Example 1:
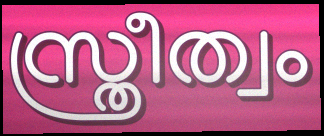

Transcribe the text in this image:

സ്ത്രീത്വം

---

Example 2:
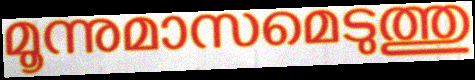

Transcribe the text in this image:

മൂന്നുമാസമെടുത്തു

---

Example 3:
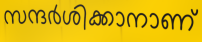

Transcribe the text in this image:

സന്ദർശിക്കാനാണ്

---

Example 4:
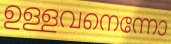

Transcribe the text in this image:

ഉള്ളവനെന്നോ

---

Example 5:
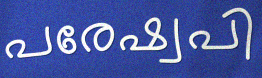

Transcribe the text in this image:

പരേഷ്വപി